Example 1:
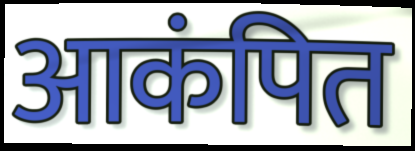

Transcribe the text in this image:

आकंपित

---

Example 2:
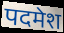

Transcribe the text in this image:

पदमेश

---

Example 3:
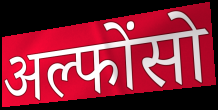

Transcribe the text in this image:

अल्फोंसो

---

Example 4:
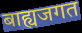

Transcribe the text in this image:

बाह्यजगत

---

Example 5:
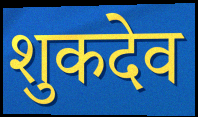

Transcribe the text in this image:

शुकदेव